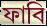
ফাবি